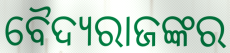
ବୈଦ୍ୟରାଜଙ୍କର